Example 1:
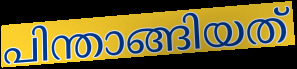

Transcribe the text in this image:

പിന്താങ്ങിയത്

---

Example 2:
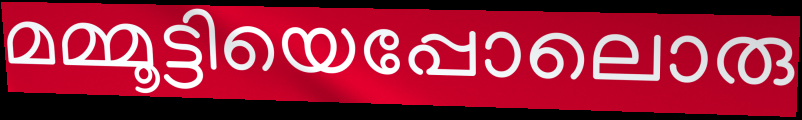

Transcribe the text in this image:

മമ്മൂട്ടിയെപ്പോലൊരു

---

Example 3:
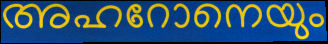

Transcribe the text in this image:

അഹറോനെയും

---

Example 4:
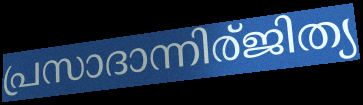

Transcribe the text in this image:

പ്രസാദാന്നിര്ജിത്യ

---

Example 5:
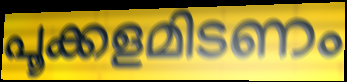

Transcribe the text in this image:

പൂക്കളമിടണം